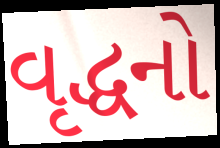
વૃદ્ધનો